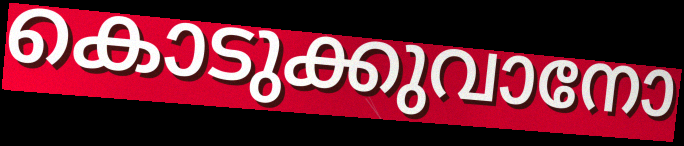
കൊടുക്കുവാനോ